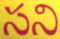
సని